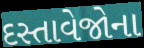
દસ્તાવેજોના